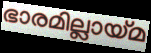
ഭാരമില്ലായ്മ